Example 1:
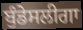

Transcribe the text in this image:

ਬੁੰਡੇਸਲੀਗਾ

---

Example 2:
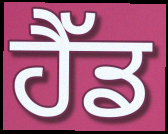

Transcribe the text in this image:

ਹੈੱਡ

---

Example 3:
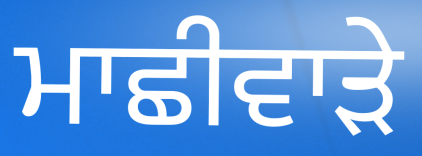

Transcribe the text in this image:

ਮਾਛੀਵਾੜੇ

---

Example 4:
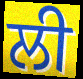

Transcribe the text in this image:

ਲੀ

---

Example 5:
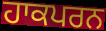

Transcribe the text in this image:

ਹਾਕਪਰਨ